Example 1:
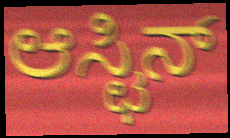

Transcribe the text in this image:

ಆಸ್ಟಿನ್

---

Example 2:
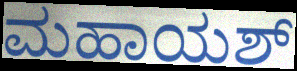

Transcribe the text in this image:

ಮಹಾಯಶ್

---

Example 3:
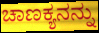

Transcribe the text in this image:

ಚಾಣಕ್ಯನನ್ನು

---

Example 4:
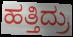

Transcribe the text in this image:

ಹತ್ತಿದ್ರು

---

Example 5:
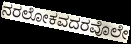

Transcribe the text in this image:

ನರಲೋಕವದರವೊಲೇ